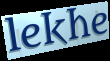
lekhe